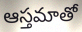
ఆస్తమాతో